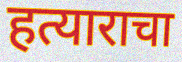
हत्याराचा